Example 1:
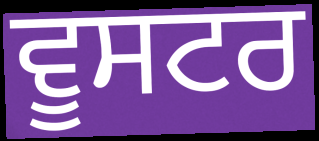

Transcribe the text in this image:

ਵੂਸਟਰ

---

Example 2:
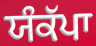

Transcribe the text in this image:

ਯੰਕੱਪਾ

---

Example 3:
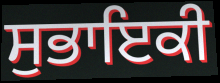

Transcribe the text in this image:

ਸੁਭਾਇਕੀ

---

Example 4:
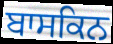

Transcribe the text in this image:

ਬਾਸਕਿਨ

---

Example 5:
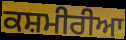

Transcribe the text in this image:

ਕਸ਼ਮੀਰੀਆ